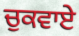
ਚੁਕਵਾਏ